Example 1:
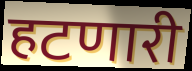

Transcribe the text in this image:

हटणारी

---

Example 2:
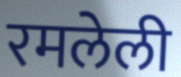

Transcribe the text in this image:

रमलेली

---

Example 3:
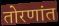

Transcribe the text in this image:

तोरणांत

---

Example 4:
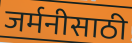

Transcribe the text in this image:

जर्मनीसाठी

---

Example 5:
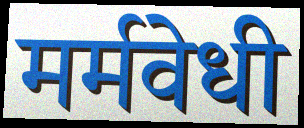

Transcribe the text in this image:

मर्मवेधी